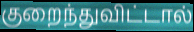
குறைந்துவிட்டால்